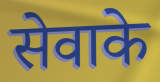
सेवाके